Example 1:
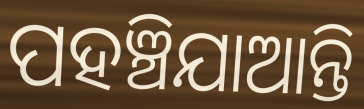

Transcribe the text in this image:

ପହଞ୍ଚିଯାଆନ୍ତି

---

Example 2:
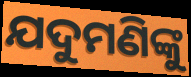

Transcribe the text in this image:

ଯଦୁମଣିଙ୍କୁ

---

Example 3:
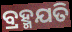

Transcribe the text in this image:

ବ୍ରହ୍ମଯତି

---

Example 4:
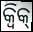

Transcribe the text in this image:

କ୍ୱିକ୍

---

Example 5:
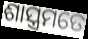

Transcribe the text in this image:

ଶାସ୍ତ୍ରମତେ